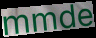
mmde